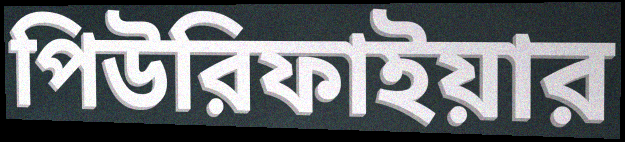
পিউরিফাইয়ার